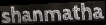
shanmatha